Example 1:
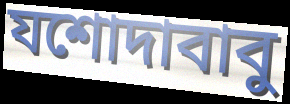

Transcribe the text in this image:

যশোদাবাবু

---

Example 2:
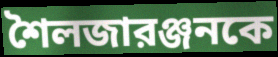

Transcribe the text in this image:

শৈলজারঞ্জনকে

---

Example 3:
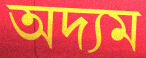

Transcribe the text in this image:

অদ্যম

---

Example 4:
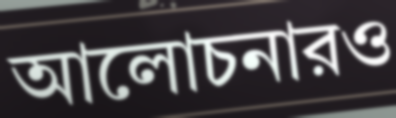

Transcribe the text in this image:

আলোচনারও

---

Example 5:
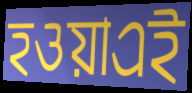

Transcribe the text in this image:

হওয়াএই